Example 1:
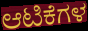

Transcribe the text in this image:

ಆಟಿಕೆಗಳ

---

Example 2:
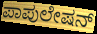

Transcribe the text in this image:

ಪಾಪುಲೇಷನ್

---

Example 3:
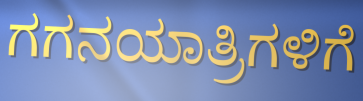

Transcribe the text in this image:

ಗಗನಯಾತ್ರಿಗಳಿಗೆ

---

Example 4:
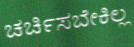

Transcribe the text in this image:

ಚರ್ಚಿಸಬೇಕಿಲ್ಲ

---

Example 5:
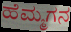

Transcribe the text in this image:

ಹೆಮ್ಮಗನ